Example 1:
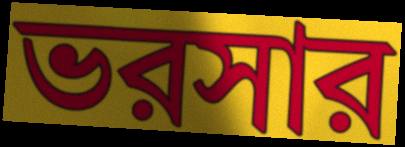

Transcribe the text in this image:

ভরসার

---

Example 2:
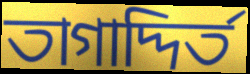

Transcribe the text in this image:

তাগাদ্দির্ত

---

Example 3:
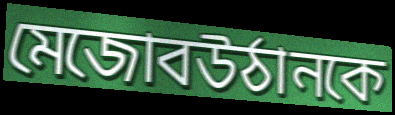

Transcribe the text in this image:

মেজোবউঠানকে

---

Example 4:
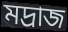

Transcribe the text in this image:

মদ্রাজ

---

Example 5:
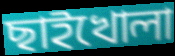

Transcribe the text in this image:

ছাইখোলা